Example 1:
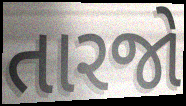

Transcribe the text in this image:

તારજો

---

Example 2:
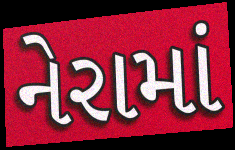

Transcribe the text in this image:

નેરામાં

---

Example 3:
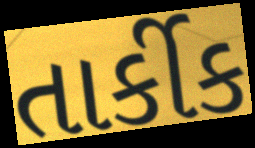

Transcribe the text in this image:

તાર્કીક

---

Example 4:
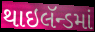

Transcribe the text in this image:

થાઇલૅન્ડમાં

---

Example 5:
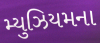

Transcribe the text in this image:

મ્યુઝિયમના